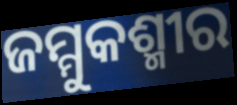
ଜମ୍ମୁକଶ୍ମୀର